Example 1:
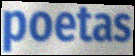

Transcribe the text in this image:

poetas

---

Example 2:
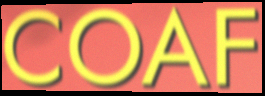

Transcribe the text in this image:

COAF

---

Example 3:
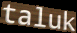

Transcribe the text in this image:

taluk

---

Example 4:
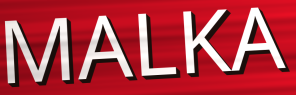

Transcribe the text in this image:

MALKA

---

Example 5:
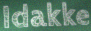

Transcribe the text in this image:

Idakke